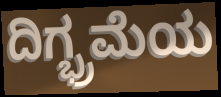
ದಿಗ್ಭ್ರಮೆಯ